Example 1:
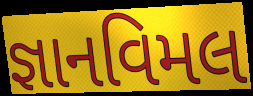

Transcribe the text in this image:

જ્ઞાનવિમલ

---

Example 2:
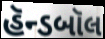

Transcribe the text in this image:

હૅન્ડબૉલ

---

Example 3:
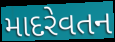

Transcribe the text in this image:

માદરેવતન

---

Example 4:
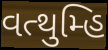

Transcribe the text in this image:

વત્થુમ્હિ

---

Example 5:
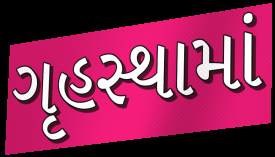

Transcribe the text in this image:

ગૃહસ્થામાં